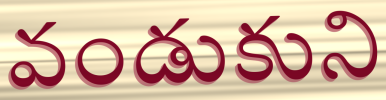
వండుకుని